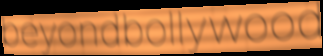
beyondbollywood